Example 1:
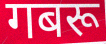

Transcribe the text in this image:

गबरू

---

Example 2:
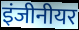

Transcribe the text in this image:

इंजीनीयर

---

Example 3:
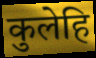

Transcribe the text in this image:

कुलेहि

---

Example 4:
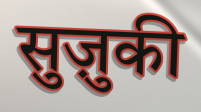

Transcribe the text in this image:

सुज़ुकी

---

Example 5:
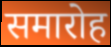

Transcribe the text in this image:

समारोह